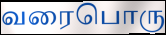
வரைபொரு